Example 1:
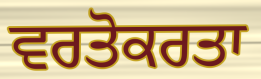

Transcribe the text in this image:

ਵਰਤੋਕਰਤਾ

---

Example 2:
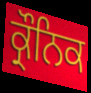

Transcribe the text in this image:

ਕ੍ਰੌਨਿਕ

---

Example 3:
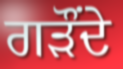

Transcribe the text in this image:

ਗੜੌਂਦੇ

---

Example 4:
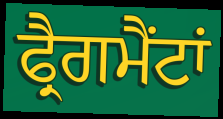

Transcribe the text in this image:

ਫ੍ਰੈਗਮੈਂਟਾਂ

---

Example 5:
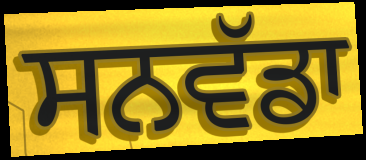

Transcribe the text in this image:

ਸਨਵੱਡਾ